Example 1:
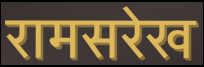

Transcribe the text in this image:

रामसरेख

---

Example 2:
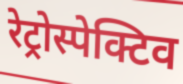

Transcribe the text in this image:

रेट्रोस्पेक्टिव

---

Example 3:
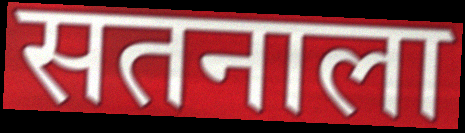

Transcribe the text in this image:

सतनाला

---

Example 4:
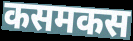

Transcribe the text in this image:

कसमकस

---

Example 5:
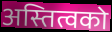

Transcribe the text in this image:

अस्तित्वको